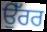
ਉੱਰਰ